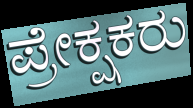
ಪ್ರೇಕ್ಷಕರು